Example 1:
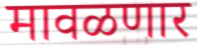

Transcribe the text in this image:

मावळणार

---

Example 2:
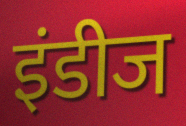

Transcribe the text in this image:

इंडीज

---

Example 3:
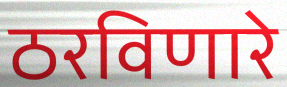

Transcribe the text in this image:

ठरविणारे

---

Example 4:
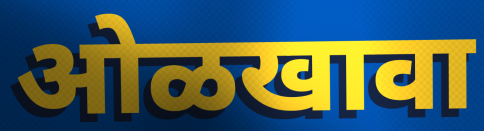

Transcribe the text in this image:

ओळखावा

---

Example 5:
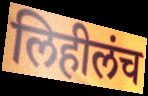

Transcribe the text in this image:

लिहीलंच